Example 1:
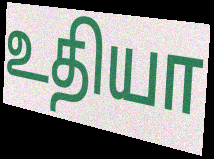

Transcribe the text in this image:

உதியா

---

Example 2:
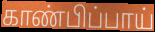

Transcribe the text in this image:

காண்பிப்பாய்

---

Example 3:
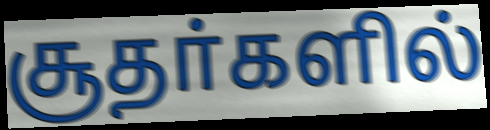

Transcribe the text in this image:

சூதர்களில்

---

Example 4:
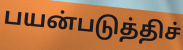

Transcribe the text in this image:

பயன்படுத்திச்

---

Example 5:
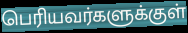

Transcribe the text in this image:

பெரியவர்களுக்குள்